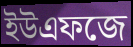
ইউএফজে